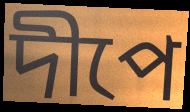
দীপে